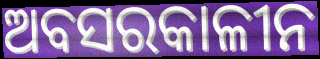
ଅବସରକାଳୀନ